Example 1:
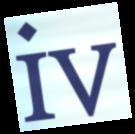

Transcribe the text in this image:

iv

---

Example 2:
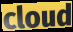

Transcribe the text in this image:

cloud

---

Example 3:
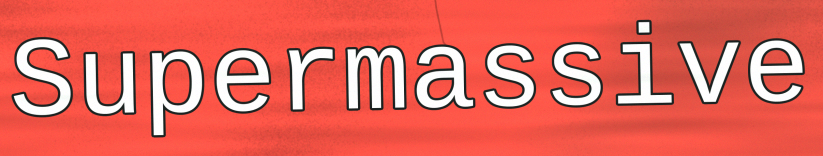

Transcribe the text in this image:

Supermassive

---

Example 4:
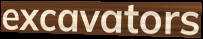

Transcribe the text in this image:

excavators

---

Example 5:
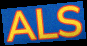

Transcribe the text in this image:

ALS